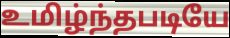
உமிழ்ந்தபடியே